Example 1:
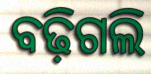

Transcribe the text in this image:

ବଢ଼ିଗଲି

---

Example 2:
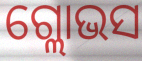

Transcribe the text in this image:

ଗ୍ଲୋଭସ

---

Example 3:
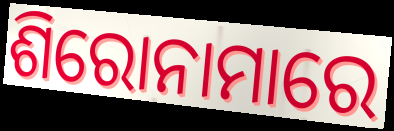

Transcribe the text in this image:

ଶିରୋନାମାରେ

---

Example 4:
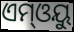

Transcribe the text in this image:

ଏମ୍ଓୟୁ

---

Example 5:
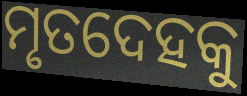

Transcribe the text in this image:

ମୃତଦେହକୁ